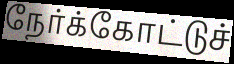
நேர்க்கோட்டுச்